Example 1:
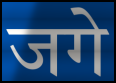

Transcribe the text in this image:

जगे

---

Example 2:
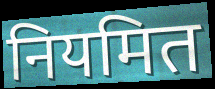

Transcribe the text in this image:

नियमित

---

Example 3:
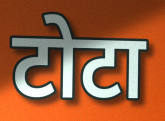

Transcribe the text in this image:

टोटा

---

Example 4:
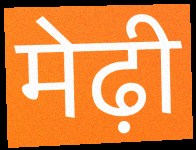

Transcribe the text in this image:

मेढ़ी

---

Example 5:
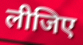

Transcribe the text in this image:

लीजिए